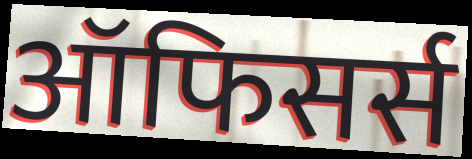
ऑफिसर्स